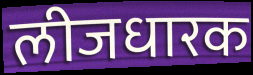
लीजधारक